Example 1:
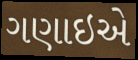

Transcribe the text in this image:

ગણાઇએ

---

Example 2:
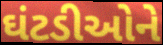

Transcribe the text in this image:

ઘંટડીઓને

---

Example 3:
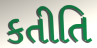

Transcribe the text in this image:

કતીતિ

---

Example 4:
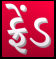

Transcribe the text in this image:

ફ્રેંડ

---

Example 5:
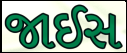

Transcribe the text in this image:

જાઈસ